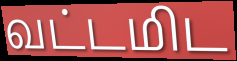
வட்டமிட